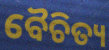
ବୈଚିତ୍ୟ